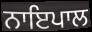
ਨਾਇਪਾਲ